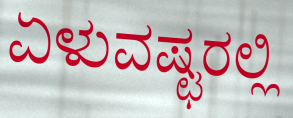
ಏಳುವಷ್ಟರಲ್ಲಿ